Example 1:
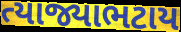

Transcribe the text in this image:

ત્યાજ્યાભટાય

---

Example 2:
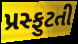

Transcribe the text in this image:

પ્રસ્ફુટતી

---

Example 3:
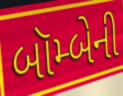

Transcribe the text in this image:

બૉમ્બેની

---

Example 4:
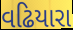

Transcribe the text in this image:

વઢિયારા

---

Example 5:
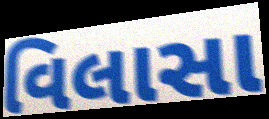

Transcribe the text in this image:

વિલાસા